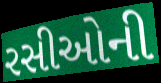
રસીઓની